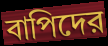
বাপিদের